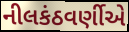
નીલકંઠવર્ણીએ